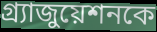
গ্র্যাজুয়েশনকে